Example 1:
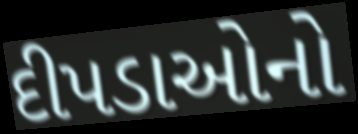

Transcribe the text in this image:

દીપડાઓનો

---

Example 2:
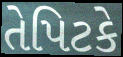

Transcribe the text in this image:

તેપિટકે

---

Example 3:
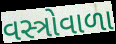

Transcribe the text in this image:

વસ્ત્રોવાળા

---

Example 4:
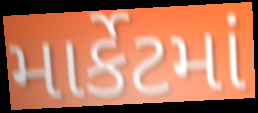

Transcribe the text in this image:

માર્કેટમાં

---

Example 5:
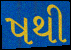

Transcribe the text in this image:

ષથી